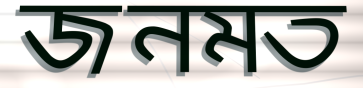
জনমত